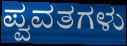
ಪ್ವವತಗಳು